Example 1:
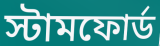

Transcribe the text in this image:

স্টামফোর্ড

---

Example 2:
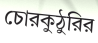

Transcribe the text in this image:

চোরকুঠুরির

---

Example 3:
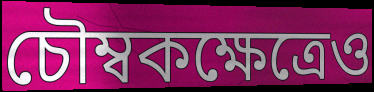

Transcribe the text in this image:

চৌম্বকক্ষেত্রেও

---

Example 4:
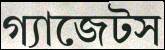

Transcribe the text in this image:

গ্যাজেটস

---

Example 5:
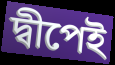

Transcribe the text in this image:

দ্বীপেই